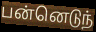
பன்னெடுந்